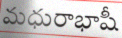
మధురాభాషీ